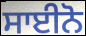
ਸਾਈਨੋ